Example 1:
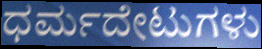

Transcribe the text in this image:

ಧರ್ಮದೇಟುಗಳು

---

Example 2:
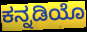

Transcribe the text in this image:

ಕನ್ನಡಿಯೊ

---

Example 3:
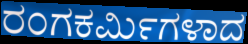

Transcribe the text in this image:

ರಂಗಕರ್ಮಿಗಳಾದ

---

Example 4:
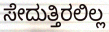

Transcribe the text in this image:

ಸೇದುತ್ತಿರಲಿಲ್ಲ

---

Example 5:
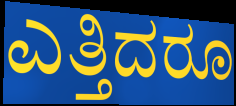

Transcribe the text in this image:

ಎತ್ತಿದರೂ